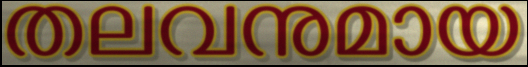
തലവനുമായ